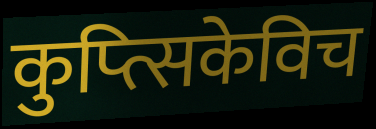
कुप्त्सिकेविच